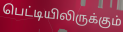
பெட்டியிலிருக்கும்